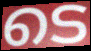
ടെ